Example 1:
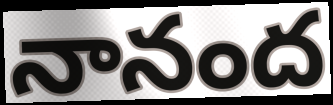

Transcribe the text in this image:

నానంద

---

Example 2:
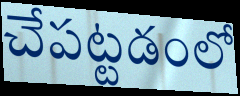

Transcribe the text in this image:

చేపట్టడంలో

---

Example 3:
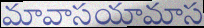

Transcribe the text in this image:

మావాసయామాస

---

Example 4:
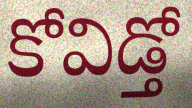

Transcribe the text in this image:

కోవిడ్తో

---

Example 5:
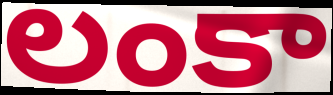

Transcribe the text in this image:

లంకా